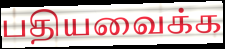
பதியவைக்க